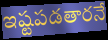
ఇష్టపడతారనే